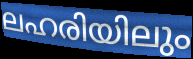
ലഹരിയിലും